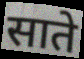
साते